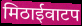
मिठाईवाटप